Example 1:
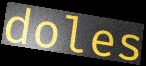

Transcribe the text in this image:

doles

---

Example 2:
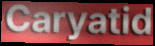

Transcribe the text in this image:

Caryatid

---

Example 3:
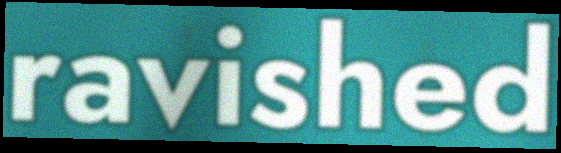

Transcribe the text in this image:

ravished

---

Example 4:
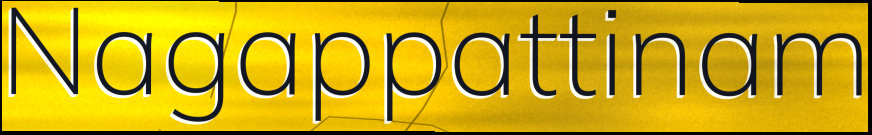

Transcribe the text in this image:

Nagappattinam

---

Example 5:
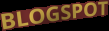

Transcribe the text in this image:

BLOGSPOT